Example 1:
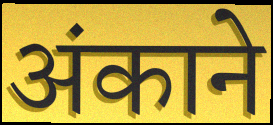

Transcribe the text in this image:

अंकाने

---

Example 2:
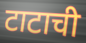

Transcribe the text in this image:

टाटाची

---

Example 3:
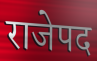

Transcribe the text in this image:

राजेपद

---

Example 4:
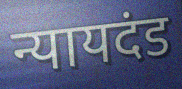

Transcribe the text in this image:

न्यायदंड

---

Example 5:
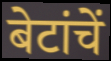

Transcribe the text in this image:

बेटांचें